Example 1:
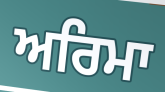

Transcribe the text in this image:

ਅਰਿਮਾ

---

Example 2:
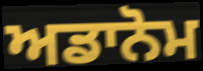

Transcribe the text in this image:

ਅਡਾਨੋਮ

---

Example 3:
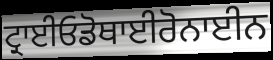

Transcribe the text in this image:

ਟ੍ਰਾਈਓਡੋਥਾਈਰੋਨਾਈਨ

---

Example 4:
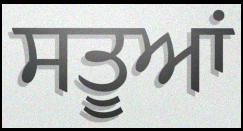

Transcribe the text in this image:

ਸਤੂਆਂ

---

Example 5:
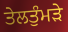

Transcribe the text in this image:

ਤੇਲਤੁੰਮੜੇ